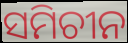
ସମିଚୀନ